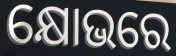
କ୍ଷୋଭରେ